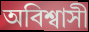
অবিশ্বাসী